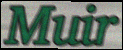
Muir